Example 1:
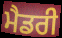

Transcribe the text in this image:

ਮੈਡਰੀ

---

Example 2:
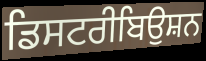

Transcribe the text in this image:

ਡਿਸਟਰੀਬਿਉਸ਼ਨ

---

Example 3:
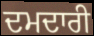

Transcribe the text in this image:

ਦਮਦਾਰੀ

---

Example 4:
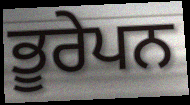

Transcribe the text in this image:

ਭੂਰੇਪਨ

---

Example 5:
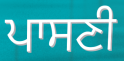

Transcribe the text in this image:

ਪਾਸਣੀ